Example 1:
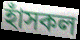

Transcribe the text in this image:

হাঁসকল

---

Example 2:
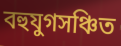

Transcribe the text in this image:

বহুযুগসঞ্চিত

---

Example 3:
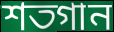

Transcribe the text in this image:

শতগান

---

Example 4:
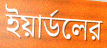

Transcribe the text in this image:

ইয়ার্ডলের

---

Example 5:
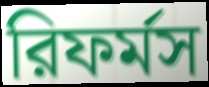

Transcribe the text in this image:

রিফর্মস